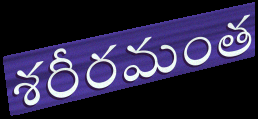
శరీరమంత